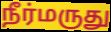
நீர்மருது